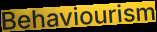
Behaviourism